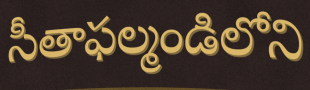
సీతాఫల్మండిలోని